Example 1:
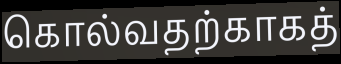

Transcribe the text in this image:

கொல்வதற்காகத்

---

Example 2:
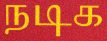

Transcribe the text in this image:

நடிக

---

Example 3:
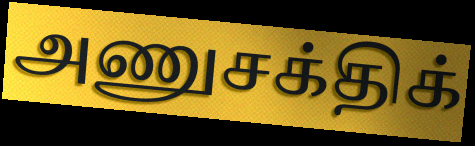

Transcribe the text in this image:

அணுசக்திக்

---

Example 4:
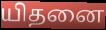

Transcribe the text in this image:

யிதனை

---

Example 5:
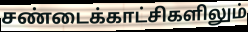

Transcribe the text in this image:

சண்டைக்காட்சிகளிலும்